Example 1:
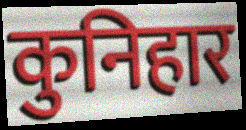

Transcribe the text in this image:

कुनिहार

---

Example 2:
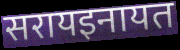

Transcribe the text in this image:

सरायइनायत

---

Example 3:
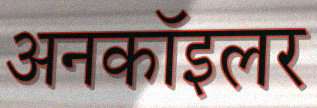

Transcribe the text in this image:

अनकॉइलर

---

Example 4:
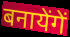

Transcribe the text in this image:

बनायेंगें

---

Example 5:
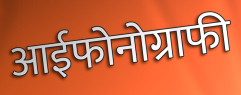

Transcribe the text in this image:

आईफोनोग्राफी